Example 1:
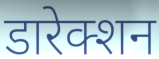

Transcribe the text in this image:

डारेक्शन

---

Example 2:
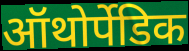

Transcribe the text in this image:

ऑथोर्पेडिक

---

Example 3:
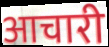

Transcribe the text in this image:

आचारी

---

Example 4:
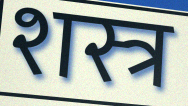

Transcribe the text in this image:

शस्त्र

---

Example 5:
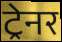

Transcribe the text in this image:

ट्रेनर